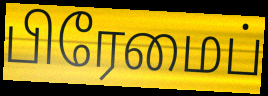
பிரேமைப்